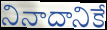
నినాదానికే